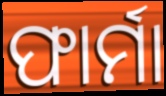
ଫାର୍ମା